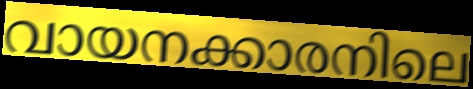
വായനക്കാരനിലെ